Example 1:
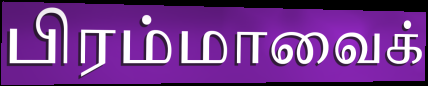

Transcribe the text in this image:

பிரம்மாவைக்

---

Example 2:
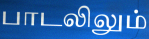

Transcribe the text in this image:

பாடலிலும்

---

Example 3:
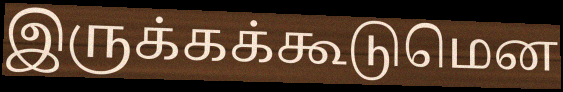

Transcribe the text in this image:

இருக்கக்கூடுமென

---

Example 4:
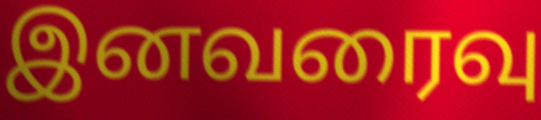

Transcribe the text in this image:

இனவரைவு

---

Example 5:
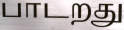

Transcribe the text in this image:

பாடறது